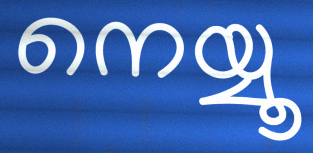
നെയ്യൂ